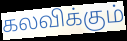
கலவிக்கும்